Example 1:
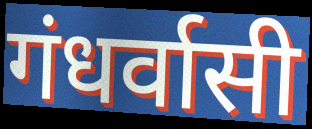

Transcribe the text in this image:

गंधर्वासी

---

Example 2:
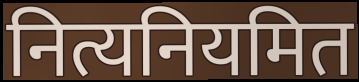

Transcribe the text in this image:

नित्यनियमित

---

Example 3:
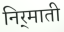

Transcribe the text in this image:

निर्माती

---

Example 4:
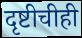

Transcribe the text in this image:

दृष्टीचीही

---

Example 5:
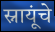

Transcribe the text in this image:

स्नायूंचे